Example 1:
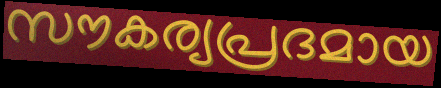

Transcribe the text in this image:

സൗകര്യപ്രദമായ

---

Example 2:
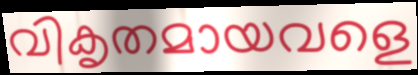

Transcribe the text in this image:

വികൃതമായവളെ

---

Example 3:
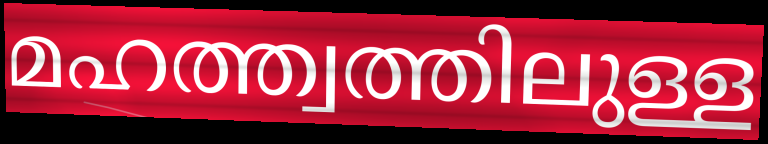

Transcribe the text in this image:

മഹത്ത്വത്തിലുള്ള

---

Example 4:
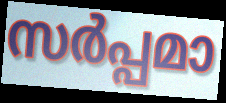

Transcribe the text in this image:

സർപ്പമാ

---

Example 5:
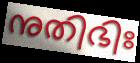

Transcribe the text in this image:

നുതിഭിഃ